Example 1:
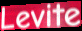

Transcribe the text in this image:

Levite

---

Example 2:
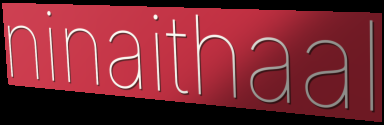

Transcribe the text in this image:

ninaithaal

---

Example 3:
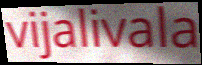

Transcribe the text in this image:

vijalivala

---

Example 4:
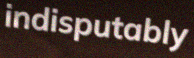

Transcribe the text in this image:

indisputably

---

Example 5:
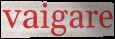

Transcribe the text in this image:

vaigare